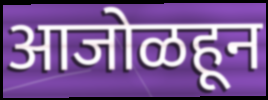
आजोळहून